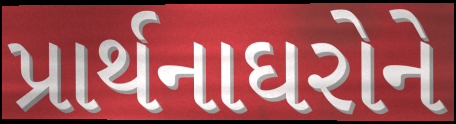
પ્રાર્થનાઘરોને